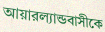
আয়ারল্যান্ডবাসীকে